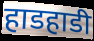
हाडहाडी